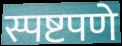
स्पष्टपणे